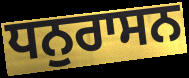
ਧਨੁਰਾਸਨ